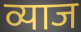
व्याज